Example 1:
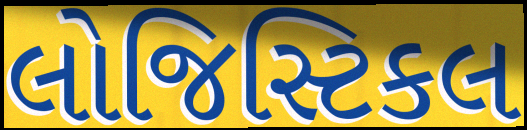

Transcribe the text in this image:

લોજિસ્ટિકલ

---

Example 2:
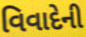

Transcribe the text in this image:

વિવાદેની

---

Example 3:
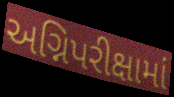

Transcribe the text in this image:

અગ્નિપરીક્ષામાં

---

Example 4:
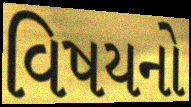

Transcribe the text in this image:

વિષયનો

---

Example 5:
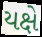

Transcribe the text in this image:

યક્ષે